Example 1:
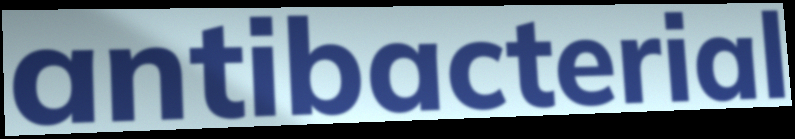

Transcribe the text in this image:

antibacterial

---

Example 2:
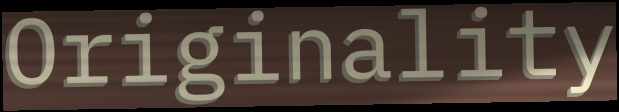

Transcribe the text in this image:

Originality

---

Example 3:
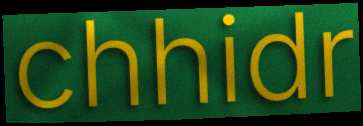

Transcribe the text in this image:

chhidr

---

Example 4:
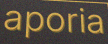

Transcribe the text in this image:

aporia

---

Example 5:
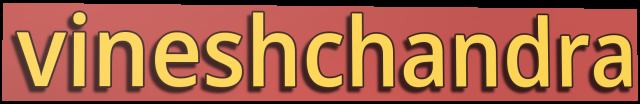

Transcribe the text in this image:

vineshchandra